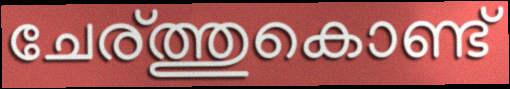
ചേര്ത്തുകൊണ്ട്